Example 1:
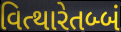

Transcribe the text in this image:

વિત્થારેતબ્બં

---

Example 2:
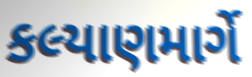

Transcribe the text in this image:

કલ્યાણમાર્ગે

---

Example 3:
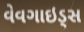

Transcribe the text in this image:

વેવગાઇડ્સ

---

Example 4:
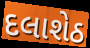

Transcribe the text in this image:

દલાશેઠ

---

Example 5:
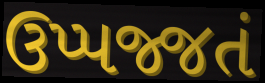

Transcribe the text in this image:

ઉપ્પજ્જતં